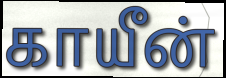
காயீன்